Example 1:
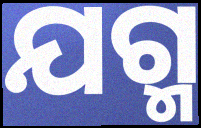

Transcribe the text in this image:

ଯଗ୍ମ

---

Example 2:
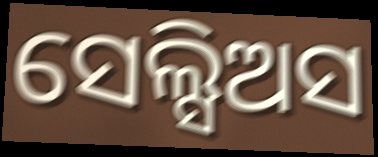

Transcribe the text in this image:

ସେଲ୍ସିଅସ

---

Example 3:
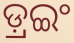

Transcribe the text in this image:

ଡ଼୍ରଇଂ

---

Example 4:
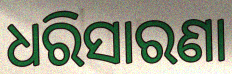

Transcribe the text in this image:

ଧରିସାରଣା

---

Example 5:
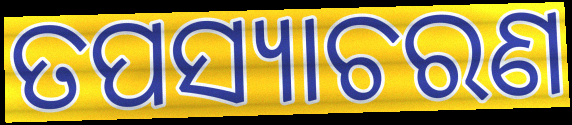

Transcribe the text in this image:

ତପସ୍ୟାଚରଣ